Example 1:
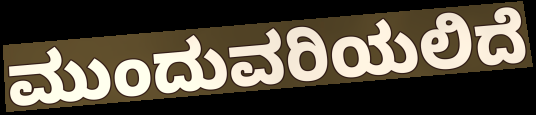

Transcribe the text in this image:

ಮುಂದುವರಿಯಲಿದೆ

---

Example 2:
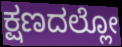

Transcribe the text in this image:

ಕ್ಷಣದಲ್ಲೋ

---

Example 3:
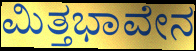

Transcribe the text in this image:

ಮಿತ್ತಭಾವೇನ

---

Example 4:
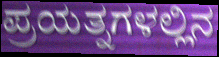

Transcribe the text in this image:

ಪ್ರಯತ್ನಗಳಲ್ಲಿನ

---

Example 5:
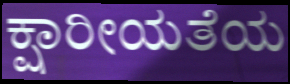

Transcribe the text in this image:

ಕ್ಷಾರೀಯತೆಯ